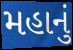
મહાનું